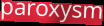
paroxysm